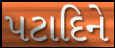
પટાદિને